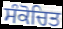
ਸੰਕੋਚਿਤ